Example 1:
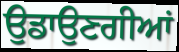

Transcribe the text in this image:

ਉਡਾਉਣਗੀਆਂ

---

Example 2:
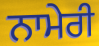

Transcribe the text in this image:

ਨਾਮੇਰੀ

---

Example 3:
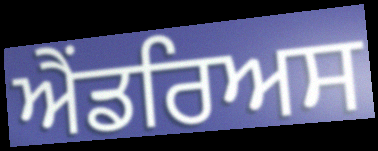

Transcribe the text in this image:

ਐਂਡਰਿਅਸ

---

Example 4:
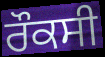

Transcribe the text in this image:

ਰੌਕਸੀ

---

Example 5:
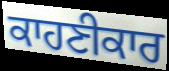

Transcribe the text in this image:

ਕਾਹਣੀਕਾਰ